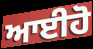
ਆਈਹੋ